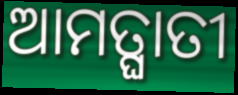
ଆମତ୍ଘାତୀ